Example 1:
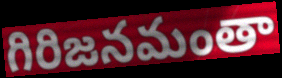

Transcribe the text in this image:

గిరిజనమంతా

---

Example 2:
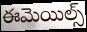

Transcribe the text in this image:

ఈమెయిల్స్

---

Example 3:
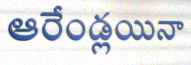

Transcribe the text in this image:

ఆరేండ్లయినా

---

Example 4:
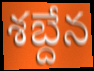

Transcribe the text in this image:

శబ్దేన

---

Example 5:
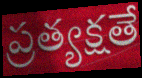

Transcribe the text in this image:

ప్రత్యక్షతే